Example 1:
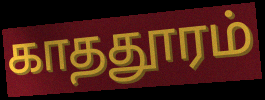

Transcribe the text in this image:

காததூரம்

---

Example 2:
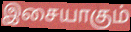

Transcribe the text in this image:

இசையாகும்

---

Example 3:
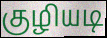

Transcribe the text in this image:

குழியடி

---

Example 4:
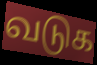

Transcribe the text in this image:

வடுக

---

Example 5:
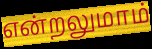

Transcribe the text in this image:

என்றலுமாம்